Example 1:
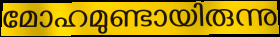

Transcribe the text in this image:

മോഹമുണ്ടായിരുന്നു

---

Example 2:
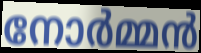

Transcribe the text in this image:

നോർമ്മൻ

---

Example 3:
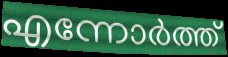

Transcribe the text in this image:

എന്നോർത്ത്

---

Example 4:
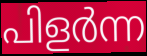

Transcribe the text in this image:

പിളർന്ന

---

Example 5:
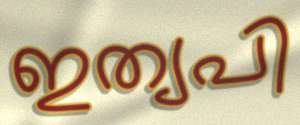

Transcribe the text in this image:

ഇത്യപി